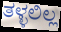
ತಳ್ಳಲಿಲ್ಲ